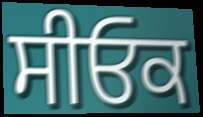
ਸੀਓਕ